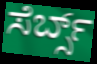
ಸೆರ್ಬ್ಸ್